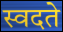
स्वदते